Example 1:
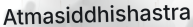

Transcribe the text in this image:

Atmasiddhishastra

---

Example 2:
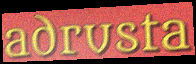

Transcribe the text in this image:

adrusta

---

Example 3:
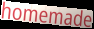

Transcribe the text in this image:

homemade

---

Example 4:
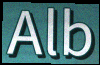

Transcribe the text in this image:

Alb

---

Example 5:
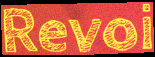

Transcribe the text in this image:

Revoi